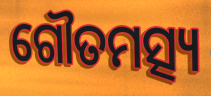
ଗୌତମତ୍ସ୍ୟ